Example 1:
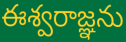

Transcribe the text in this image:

ఈశ్వరాజ్ఞను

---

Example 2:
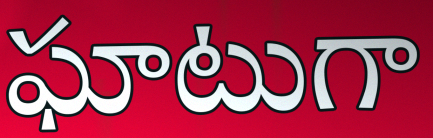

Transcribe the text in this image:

ఘాటుగా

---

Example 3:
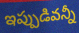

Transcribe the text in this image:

ఇప్పుడివన్నీ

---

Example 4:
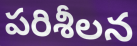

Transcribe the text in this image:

పరిశీలన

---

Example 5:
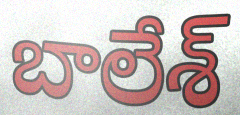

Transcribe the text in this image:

బాలేశ్